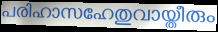
പരിഹാസഹേതുവായ്തീരും